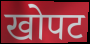
खोपट